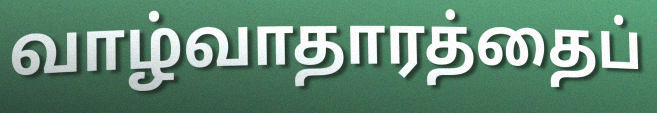
வாழ்வாதாரத்தைப்